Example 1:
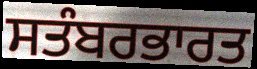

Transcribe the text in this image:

ਸਤੰਬਰਭਾਰਤ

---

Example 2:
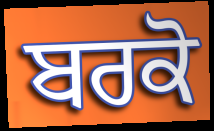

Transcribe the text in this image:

ਬਰਕੋ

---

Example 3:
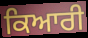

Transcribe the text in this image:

ਕਿਆਰੀ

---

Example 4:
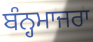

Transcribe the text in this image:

ਬੰਨ੍ਹਮਾਜਰਾ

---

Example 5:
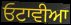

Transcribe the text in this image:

ਓਟਾਵੀਆ